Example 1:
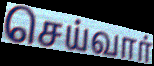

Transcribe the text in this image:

செய்வார்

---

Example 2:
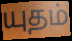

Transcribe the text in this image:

யுதம்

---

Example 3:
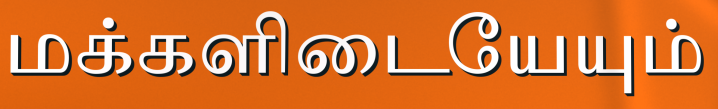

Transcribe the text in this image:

மக்களிடையேயும்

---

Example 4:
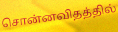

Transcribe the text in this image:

சொன்னவிதத்தில்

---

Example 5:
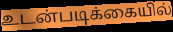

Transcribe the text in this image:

உடன்படிக்கையில்